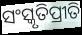
ସଂସ୍କୃତିପ୍ରୀତି